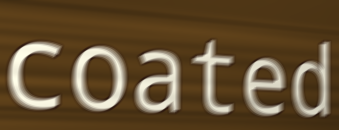
coated